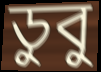
ডুবু